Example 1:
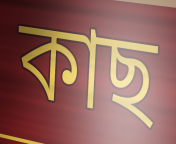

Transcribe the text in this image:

কাছ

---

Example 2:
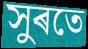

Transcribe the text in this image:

সুৰতে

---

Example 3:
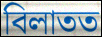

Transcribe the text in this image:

বিলাতত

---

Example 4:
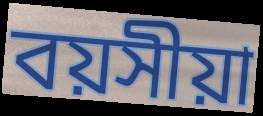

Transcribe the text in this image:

বয়সীয়া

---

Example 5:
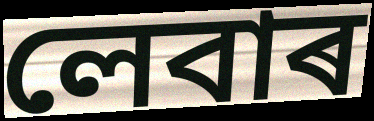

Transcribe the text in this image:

লেবাৰ